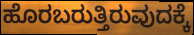
ಹೊರಬರುತ್ತಿರುವುದಕ್ಕೆ